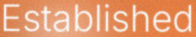
Established